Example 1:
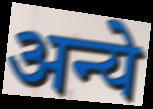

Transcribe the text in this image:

अन्ये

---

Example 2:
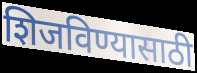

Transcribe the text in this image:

शिजविण्यासाठी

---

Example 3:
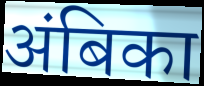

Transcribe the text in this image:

अंबिका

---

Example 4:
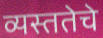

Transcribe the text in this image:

व्यस्ततेचे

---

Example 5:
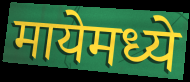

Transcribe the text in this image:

मायेमध्ये